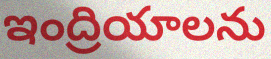
ఇంద్రియాలను